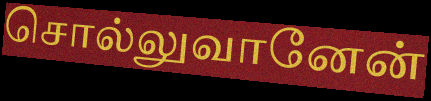
சொல்லுவானேன்